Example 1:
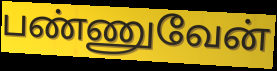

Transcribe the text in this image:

பண்ணுவேன்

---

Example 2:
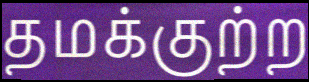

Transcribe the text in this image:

தமக்குற்ற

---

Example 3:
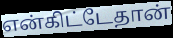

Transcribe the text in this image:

என்கிட்டேதான்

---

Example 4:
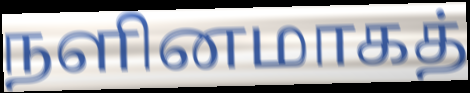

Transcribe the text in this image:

நளினமாகத்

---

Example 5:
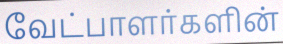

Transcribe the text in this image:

வேட்பாளர்களின்